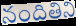
నందితిని